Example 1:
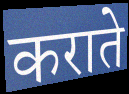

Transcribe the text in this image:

कराते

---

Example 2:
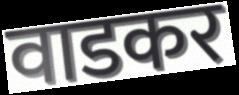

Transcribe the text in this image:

वाडकर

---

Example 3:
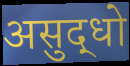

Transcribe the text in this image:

असुद्धो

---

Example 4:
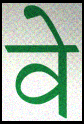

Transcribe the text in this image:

वे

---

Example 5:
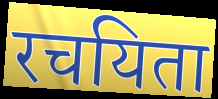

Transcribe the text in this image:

रचयिता